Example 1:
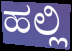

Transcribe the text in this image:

ಹಲ್ಲಿ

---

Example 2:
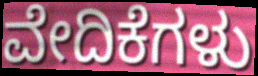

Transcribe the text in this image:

ವೇದಿಕೆಗಳು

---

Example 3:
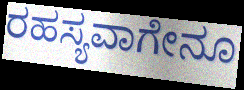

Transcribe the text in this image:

ರಹಸ್ಯವಾಗೇನೂ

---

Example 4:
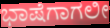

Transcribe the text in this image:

ಭಾಷೆಗಾಗಲೀ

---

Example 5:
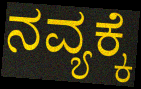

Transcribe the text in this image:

ನವ್ಯಕ್ಕೆ